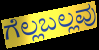
ಗೆಲ್ಲಬಲ್ಲವು